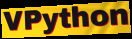
VPython